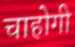
चाहोगी